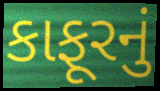
કાફૂરનું